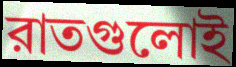
রাতগুলোই